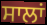
ਸਾਲਾਂ